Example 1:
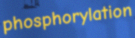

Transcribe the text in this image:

phosphorylation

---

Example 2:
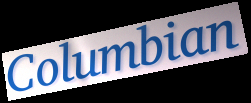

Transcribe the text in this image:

Columbian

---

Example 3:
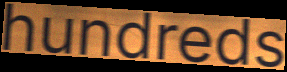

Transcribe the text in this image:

hundreds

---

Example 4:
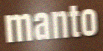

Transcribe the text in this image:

manto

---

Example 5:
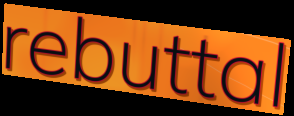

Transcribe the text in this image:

rebuttal